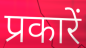
प्रकारें